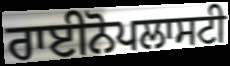
ਰਾਈਨੋਪਲਾਸਟੀ